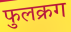
फुलक्रग